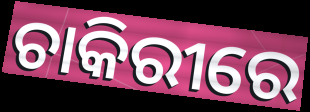
ଚାକିରୀରେ